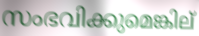
സംഭവിക്കുമെങ്കില്